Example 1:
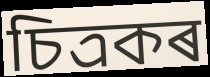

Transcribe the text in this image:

চিত্ৰকৰ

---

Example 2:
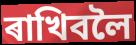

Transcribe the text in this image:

ৰাখিবলৈ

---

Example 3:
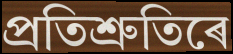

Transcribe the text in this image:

প্ৰতিশ্ৰুতিৰে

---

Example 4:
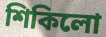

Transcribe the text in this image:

শিকিলো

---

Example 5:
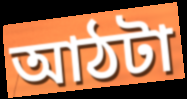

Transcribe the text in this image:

আঠটা